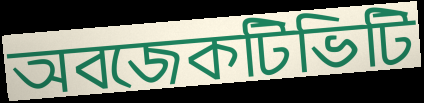
অবজেকটিভিটি